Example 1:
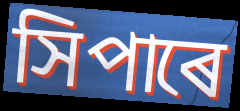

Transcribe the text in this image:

সিপাৰে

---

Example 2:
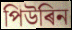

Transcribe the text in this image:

পিউৰিন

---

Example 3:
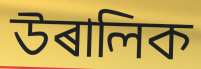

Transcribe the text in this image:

উৰালিক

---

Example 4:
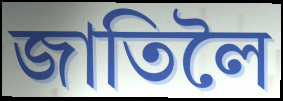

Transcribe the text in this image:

জাতিলৈ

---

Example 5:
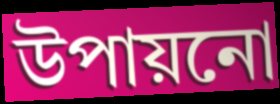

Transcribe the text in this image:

উপায়নো